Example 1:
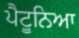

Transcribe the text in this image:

ਪੈਟੂਨਿਆ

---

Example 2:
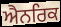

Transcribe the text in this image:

ਐਨਰਿਕ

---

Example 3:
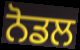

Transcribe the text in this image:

ਨੋਡਲ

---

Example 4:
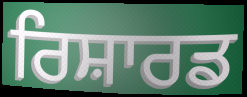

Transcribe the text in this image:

ਰਿਸ਼ਾਰਡ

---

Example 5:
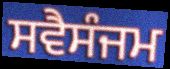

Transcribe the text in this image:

ਸਵੈਸੰਜਮ